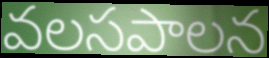
వలసపాలన